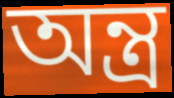
অন্ত্র